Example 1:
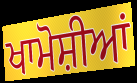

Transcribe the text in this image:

ਖਾਮੋਸ਼ੀਆਂ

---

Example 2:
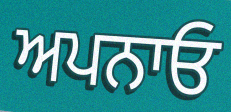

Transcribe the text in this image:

ਅਪਨਾਓ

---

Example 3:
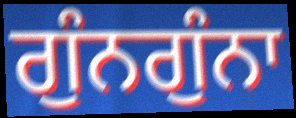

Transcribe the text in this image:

ਗੁੰਨਗੁੰਨਾ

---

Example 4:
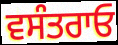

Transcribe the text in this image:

ਵਸੰਤਰਾਓ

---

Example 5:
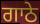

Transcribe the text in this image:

ਗਾਠੇ